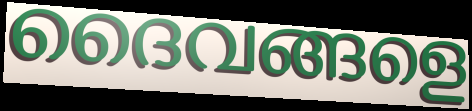
ദൈവങ്ങളെ